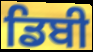
ਡਿਬੀ